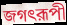
জগৎরূপী